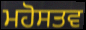
ਮਹੋਸਤਵ